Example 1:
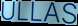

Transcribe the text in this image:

ULLAS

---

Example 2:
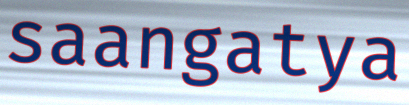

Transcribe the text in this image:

saangatya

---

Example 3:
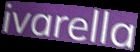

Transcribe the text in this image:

ivarella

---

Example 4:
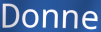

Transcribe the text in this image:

Donne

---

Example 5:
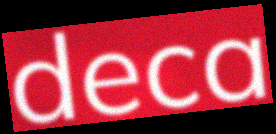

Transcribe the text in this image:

deca